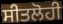
ਸੀਤਲੋਹੀ